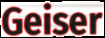
Geiser